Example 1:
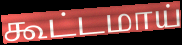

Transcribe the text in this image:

கூட்டமாய்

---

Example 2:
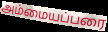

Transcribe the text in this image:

அம்மையப்பரை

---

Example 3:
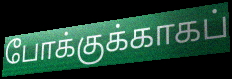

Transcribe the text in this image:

போக்குக்காகப்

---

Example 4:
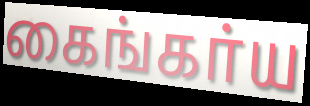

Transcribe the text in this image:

கைங்கர்ய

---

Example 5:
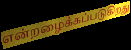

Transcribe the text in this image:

என்றழைக்கப்படுகிறது